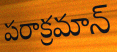
పరాక్రమాన్